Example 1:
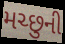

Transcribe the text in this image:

મચ્છુની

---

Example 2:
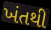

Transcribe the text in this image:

ખંતથી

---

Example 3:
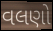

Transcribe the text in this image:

વલણો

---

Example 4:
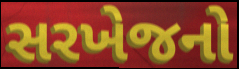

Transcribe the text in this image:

સરખેજનો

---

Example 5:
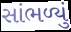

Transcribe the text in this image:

સાંભળ્યું